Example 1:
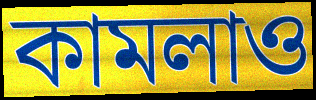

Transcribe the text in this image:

কামলাও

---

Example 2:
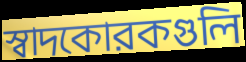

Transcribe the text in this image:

স্বাদকোরকগুলি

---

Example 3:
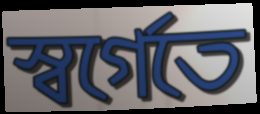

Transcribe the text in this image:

স্বর্গেতে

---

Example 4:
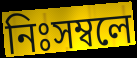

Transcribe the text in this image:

নিঃসম্বলে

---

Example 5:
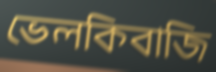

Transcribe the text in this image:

ভেলকিবাজি